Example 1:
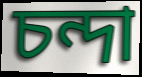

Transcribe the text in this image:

চন্দা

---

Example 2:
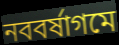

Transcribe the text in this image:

নববর্ষাগমে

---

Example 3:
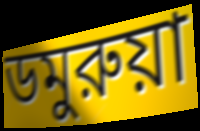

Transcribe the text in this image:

ডমুরুয়া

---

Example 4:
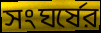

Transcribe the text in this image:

সংঘর্ষের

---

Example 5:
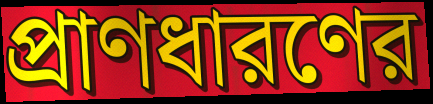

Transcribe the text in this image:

প্রাণধারণের